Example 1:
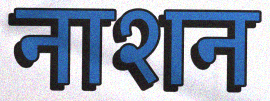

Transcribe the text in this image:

नाशन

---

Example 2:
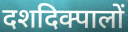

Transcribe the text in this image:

दशदिक्पालों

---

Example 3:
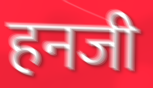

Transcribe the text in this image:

हनजी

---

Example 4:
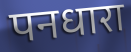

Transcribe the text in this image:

पनधारा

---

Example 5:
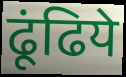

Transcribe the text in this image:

ढूंढिये